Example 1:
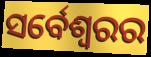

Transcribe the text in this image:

ସର୍ବେଶ୍ୱରର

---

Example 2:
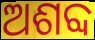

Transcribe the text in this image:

ଅଶବ୍ଦ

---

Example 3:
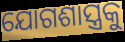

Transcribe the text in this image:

ଯୋଗଶାସ୍ତ୍ରକୁ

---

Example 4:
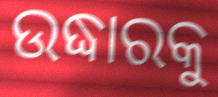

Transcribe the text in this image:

ଉଦ୍ଧାରକୁ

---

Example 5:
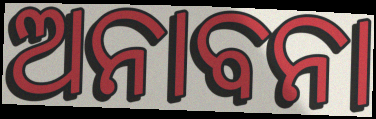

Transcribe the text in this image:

ଅନାବନା